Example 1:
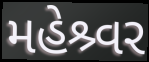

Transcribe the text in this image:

મહેશ્ર્વર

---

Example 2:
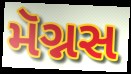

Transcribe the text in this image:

મૅગ્નસ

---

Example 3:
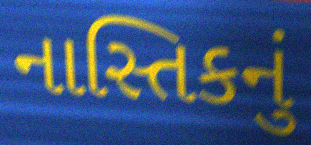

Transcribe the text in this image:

નાસ્તિકનું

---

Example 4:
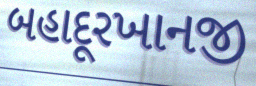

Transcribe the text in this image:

બહાદૂરખાનજી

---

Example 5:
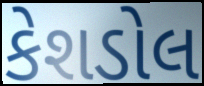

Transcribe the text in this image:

કેશડોલ